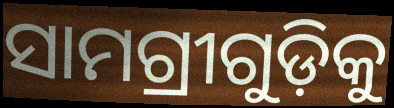
ସାମଗ୍ରୀଗୁଡ଼ିକୁ